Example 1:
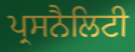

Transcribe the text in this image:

ਪ੍ਰਸਨੈਲਿਟੀ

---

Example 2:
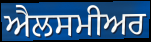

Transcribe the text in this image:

ਐਲਸਮੀਅਰ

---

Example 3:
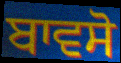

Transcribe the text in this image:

ਬਾਵਸੋ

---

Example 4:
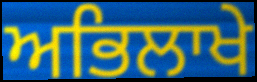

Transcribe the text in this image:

ਅਭਿਲਾਖੇ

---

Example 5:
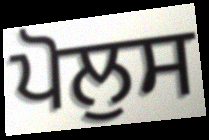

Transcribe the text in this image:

ਪੋਲੁਸ